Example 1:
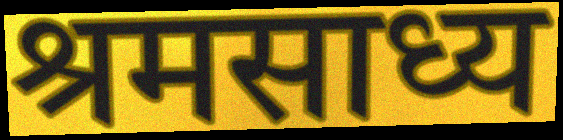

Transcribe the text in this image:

श्रमसाध्य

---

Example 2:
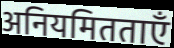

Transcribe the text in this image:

अनियमितताएँ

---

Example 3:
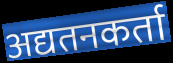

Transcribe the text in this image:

अद्यतनकर्ता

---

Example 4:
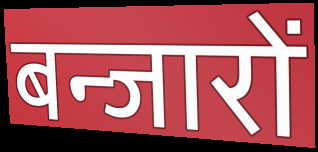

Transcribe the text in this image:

बन्जारों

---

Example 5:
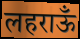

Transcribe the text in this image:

लहराऊँ